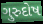
ગુરુદોષ